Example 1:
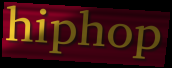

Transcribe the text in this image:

hiphop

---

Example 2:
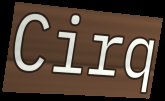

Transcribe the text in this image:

Cirq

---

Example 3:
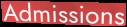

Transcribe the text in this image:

Admissions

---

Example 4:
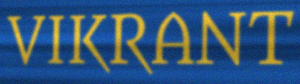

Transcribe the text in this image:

VIKRANT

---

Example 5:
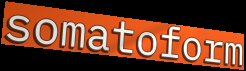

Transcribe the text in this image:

somatoform